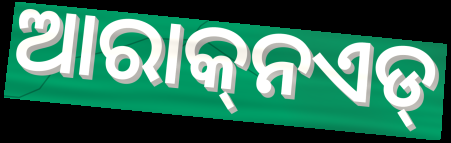
ଆରାକ୍‌ନଏଡ୍